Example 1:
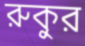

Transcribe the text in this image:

রুকুর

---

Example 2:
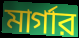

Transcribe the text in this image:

মার্গার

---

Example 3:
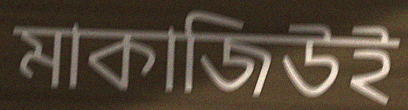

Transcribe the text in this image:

মাকাজিউই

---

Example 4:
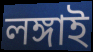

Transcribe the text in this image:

লঙ্গাই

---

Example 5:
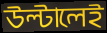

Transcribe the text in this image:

উল্টালেই